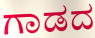
ಗಾಡದ